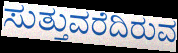
ಸುತ್ತುವರೆದಿರುವ